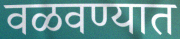
वळवण्यात